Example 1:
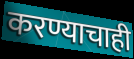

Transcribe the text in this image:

करण्याचाही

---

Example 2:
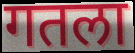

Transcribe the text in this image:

गतला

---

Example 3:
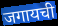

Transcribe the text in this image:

जगायची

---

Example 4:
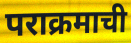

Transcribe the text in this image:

पराक्रमाची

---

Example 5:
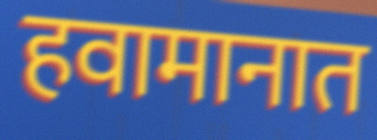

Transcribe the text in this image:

हवामानात